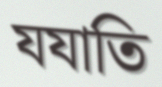
যযাতি